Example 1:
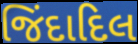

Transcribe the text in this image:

જિંદાદિલ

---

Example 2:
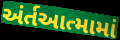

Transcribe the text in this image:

અંર્તઆત્મામાં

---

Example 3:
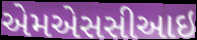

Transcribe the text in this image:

એમએસસીઆઇ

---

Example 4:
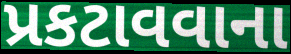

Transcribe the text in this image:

પ્રકટાવવાના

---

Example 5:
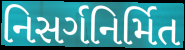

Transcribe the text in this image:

નિસર્ગનિર્મિત